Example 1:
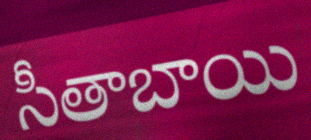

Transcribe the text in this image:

సీతాబాయి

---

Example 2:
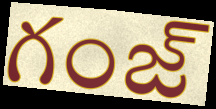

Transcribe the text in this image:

గంజ్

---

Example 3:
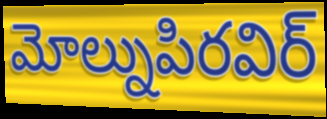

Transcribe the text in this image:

మోల్నుపిరవిర్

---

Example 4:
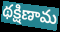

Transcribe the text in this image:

థక్షిణామ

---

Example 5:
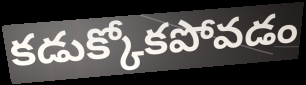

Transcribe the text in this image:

కడుక్కోకపోవడం